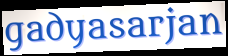
gadyasarjan